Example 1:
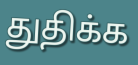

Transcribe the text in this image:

துதிக்க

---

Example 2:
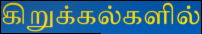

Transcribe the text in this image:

கிறுக்கல்களில்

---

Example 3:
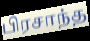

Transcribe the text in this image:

பிரசாந்த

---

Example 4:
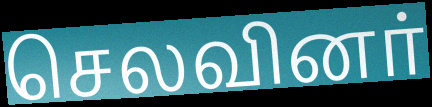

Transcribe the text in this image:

செலவினர்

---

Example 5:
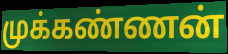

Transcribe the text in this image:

முக்கண்ணன்